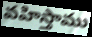
వహిస్తాము